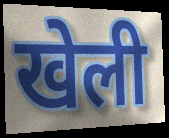
खेली